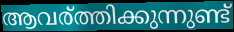
ആവര്ത്തിക്കുന്നുണ്ട്